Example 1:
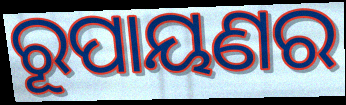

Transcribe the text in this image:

ରୂପାୟଣର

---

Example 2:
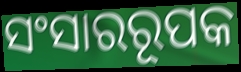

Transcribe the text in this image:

ସଂସାରରୂପକ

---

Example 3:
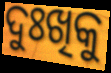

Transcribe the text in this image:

ଦୁଃଖିକୁ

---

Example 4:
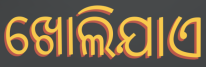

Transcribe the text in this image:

ଖୋଲିଯାଏ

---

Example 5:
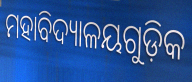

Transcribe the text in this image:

ମହାବିଦ୍ୟାଳୟଗୁଡ଼ିକ